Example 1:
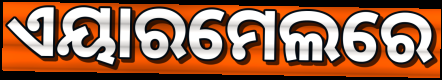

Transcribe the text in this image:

ଏୟାରମେଲରେ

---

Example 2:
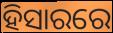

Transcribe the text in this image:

ହିସାରରେ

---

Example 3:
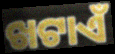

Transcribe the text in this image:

ଖଟାଏଁ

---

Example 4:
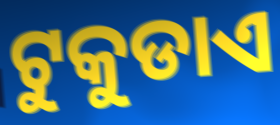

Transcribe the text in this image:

ଟୁକୁଡାଏ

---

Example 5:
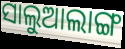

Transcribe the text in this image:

ସାଲୁଆଲାଙ୍ଗ